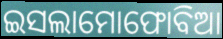
ଇସଲାମୋଫୋବିଆ